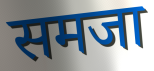
समजा